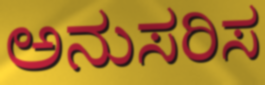
ಅನುಸರಿಸ